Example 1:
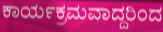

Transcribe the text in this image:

ಕಾರ್ಯಕ್ರಮವಾದ್ದರಿಂದ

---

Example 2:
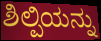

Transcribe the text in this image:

ಶಿಲ್ಪಿಯನ್ನು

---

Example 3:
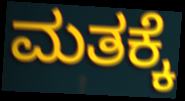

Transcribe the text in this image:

ಮತಕ್ಕೆ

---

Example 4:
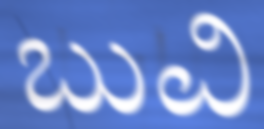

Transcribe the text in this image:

ಬುವಿ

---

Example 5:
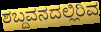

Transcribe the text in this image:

ಶಬ್ದವನದಲ್ಲಿರಿವ